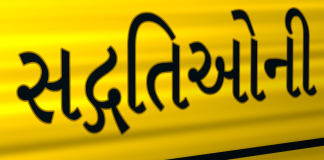
સદ્ગતિઓની